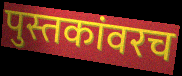
पुस्तकांवरच